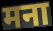
मना